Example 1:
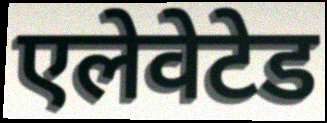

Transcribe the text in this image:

एलेवेटेड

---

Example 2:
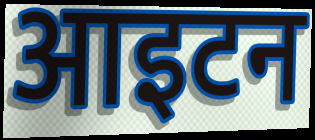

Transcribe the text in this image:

आइटन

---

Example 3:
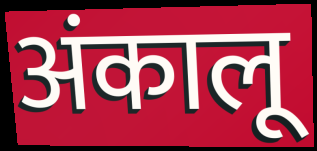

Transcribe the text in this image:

अंकालू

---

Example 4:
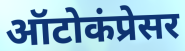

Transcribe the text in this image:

ऑटोकंप्रेसर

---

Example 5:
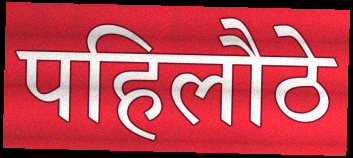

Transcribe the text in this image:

पहिलौठे